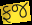
ફજ